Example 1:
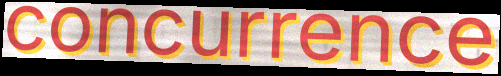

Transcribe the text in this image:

concurrence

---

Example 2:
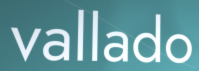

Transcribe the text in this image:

vallado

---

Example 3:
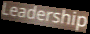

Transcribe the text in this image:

Leadership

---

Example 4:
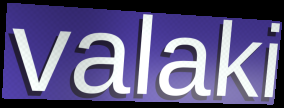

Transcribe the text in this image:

valaki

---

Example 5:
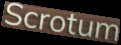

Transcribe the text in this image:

Scrotum